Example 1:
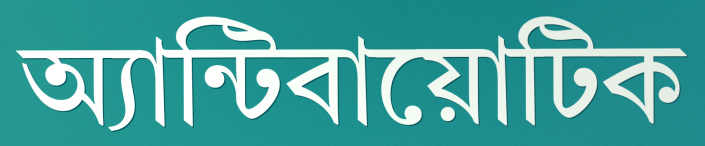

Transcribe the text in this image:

অ্যান্টিবায়োটিক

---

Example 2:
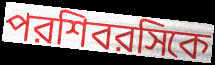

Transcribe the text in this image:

পরশিবরসিকে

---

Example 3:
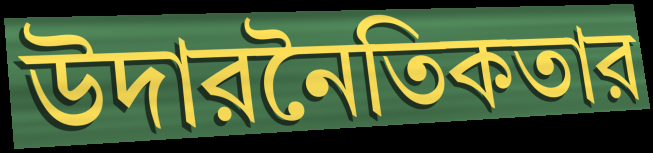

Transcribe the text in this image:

উদারনৈতিকতার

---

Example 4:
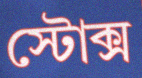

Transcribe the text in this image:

স্টোক্স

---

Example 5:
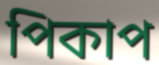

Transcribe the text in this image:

পিকাপ